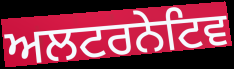
ਅਲਟਰਨੇਟਿਵ